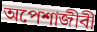
অপেশাজীবী